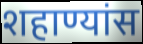
शहाण्यांस